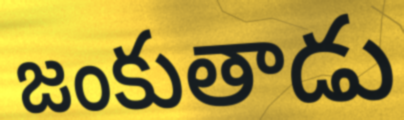
జంకుతాడు